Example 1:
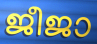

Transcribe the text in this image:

ജീജാ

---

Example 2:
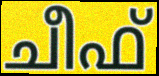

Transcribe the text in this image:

ചീഫ്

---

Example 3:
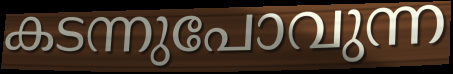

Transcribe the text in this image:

കടന്നുപോവുന്ന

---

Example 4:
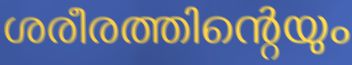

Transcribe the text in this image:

ശരീരത്തിന്റെയും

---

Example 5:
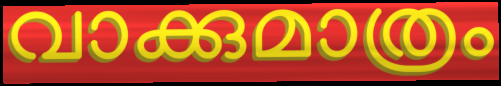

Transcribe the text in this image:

വാക്കുമാത്രം